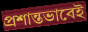
প্রশান্তভাবেই